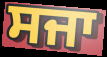
ਸਜਾ